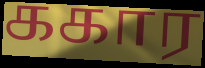
ககார